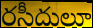
రసీదులూ